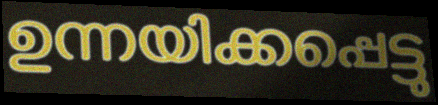
ഉന്നയിക്കപ്പെട്ടു